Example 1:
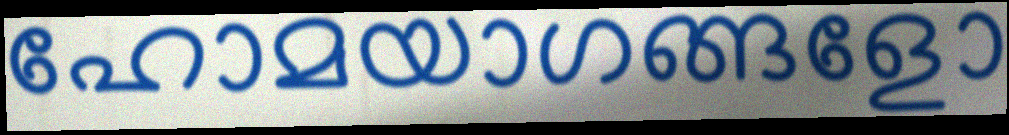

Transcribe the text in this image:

ഹോമയാഗങ്ങളോ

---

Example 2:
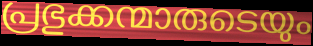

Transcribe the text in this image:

പ്രഭുക്കന്മാരുടെയും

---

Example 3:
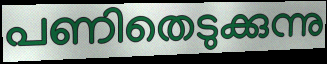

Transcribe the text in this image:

പണിതെടുക്കുന്നു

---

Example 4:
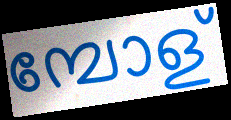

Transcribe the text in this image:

മ്പോള്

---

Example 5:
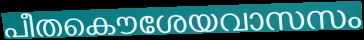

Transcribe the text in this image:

പീതകൌശേയവാസസം